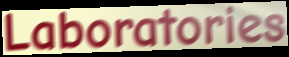
Laboratories